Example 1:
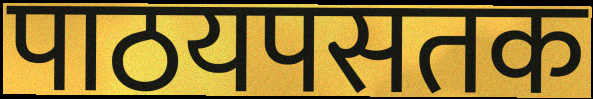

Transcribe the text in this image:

पाठयपसतक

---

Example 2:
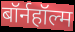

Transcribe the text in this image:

बॉर्नहॉल्म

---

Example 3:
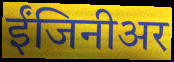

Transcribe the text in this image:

ईंजिनीअर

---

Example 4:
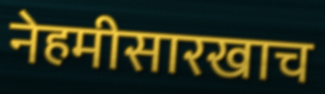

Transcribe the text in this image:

नेहमीसारखाच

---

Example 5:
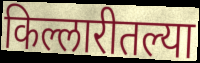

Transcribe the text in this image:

किल्लारीतल्या